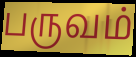
பருவம்